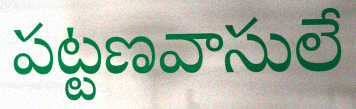
పట్టణవాసులే